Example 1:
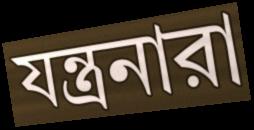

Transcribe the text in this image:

যন্ত্রনারা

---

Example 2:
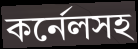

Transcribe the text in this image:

কর্নেলসহ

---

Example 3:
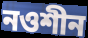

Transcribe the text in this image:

নওশীন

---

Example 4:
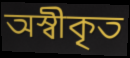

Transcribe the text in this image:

অস্বীকৃত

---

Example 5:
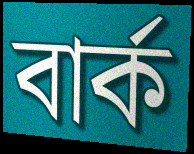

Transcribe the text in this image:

বার্ক